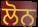
ਲੋਨ